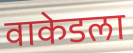
वाकेडला